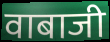
वाबाजी